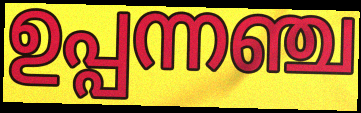
ഉപ്പന്നഞ്ച